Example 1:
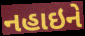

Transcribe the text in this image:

નહાઇને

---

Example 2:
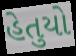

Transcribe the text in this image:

હેતુયો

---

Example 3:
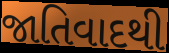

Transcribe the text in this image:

જાતિવાદથી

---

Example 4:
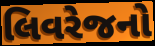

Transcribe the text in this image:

લિવરેજનો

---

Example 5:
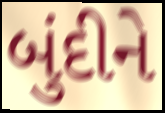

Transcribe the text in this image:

બુંદીને